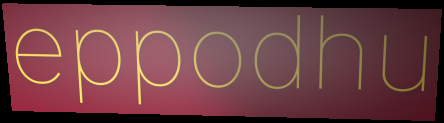
eppodhu